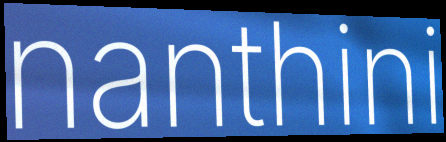
nanthini